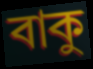
বাকু